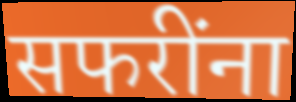
सफरींना